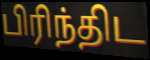
பிரிந்திட